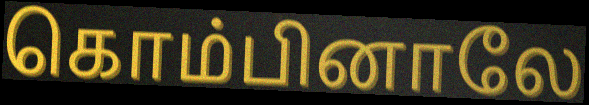
கொம்பினாலே